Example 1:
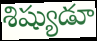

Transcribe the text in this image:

శిష్యుడూ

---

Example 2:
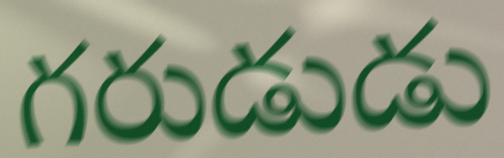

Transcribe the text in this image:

గరుడుడు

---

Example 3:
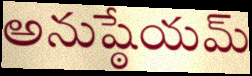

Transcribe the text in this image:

అనుష్ఠేయమ్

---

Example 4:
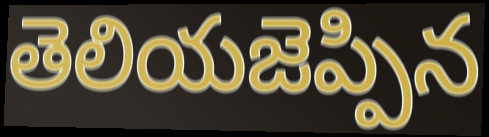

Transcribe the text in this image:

తెలియజెప్పిన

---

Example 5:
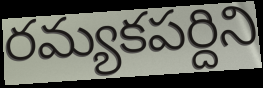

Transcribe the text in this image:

రమ్యకపర్దిని